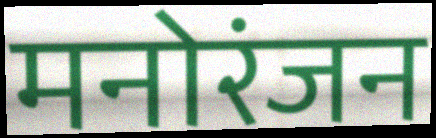
मनोरंजन